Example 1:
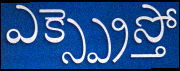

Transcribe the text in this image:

ఎక్స్ప్రెస్తో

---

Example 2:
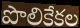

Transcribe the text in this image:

పొలికేకల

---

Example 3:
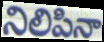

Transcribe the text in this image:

నిలిపినా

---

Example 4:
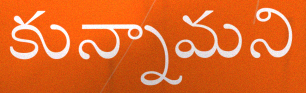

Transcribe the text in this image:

కున్నామని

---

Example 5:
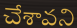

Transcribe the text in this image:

చేశావని